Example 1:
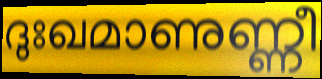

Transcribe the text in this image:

ദുഃഖമാണുണ്ണീ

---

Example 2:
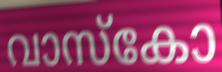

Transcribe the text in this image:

വാസ്കോ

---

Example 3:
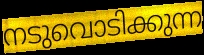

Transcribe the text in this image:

നടുവൊടിക്കുന്ന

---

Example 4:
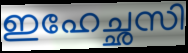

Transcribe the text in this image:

ഇഹേച്ഛസി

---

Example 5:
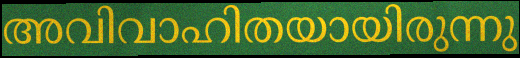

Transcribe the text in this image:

അവിവാഹിതയായിരുന്നു